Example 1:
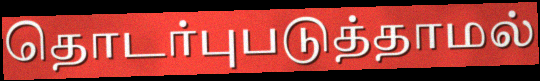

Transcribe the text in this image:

தொடர்புபடுத்தாமல்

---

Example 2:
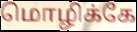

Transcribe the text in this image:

மொழிக்கே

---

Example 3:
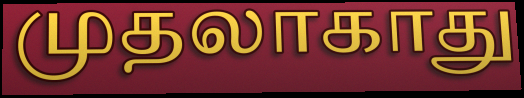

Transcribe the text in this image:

முதலாகாது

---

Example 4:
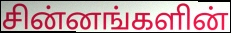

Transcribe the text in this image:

சின்னங்களின்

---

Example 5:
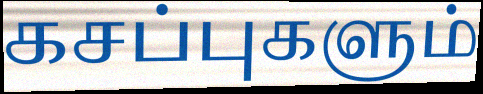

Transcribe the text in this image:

கசப்புகளும்